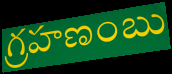
గ్రహణంబు